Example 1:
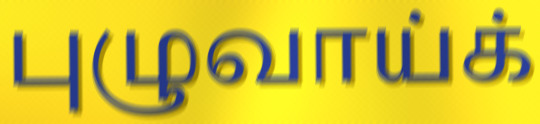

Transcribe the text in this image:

புழுவாய்க்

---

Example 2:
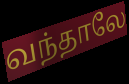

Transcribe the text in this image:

வந்தாலே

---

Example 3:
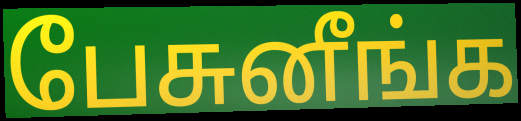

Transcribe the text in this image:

பேசுனீங்க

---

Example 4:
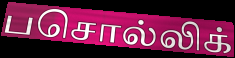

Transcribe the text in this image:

பசொல்லிக்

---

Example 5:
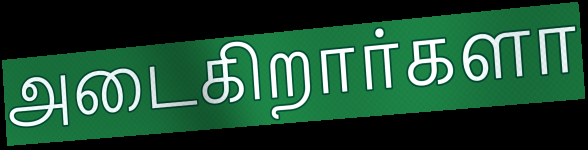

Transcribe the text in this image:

அடைகிறார்களா